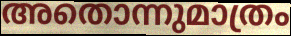
അതൊന്നുമാത്രം